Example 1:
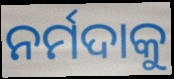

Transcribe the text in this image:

ନର୍ମଦାକୁ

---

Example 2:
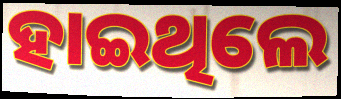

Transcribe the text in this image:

ହାଇଥିଲେ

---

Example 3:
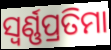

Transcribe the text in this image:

ସ୍ୱର୍ଣ୍ଣପ୍ରତିମା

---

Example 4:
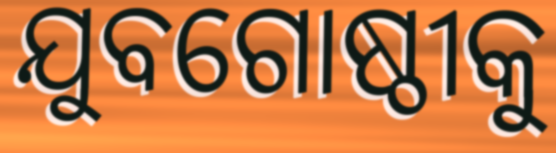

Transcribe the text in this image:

ଯୁବଗୋଷ୍ଠୀକୁ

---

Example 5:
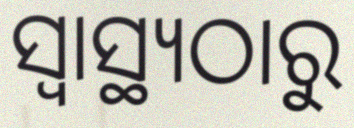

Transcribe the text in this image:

ସ୍ବାସ୍ଥ୍ୟଠାରୁ